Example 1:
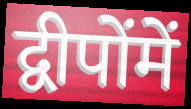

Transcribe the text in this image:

द्वीपोंमें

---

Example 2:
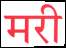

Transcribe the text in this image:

मरी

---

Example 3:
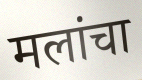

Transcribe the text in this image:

मलांचा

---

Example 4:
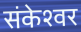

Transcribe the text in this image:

संकेश्वर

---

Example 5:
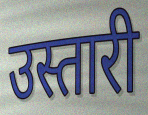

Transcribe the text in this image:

उस्तारी